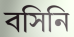
বসিনি